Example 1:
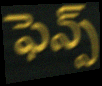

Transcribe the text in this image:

ఫెన్స్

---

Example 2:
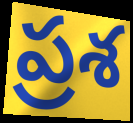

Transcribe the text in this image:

ప్రశ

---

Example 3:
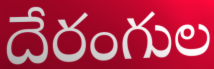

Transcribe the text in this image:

దేరంగుల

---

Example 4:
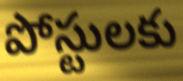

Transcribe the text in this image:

పోస్టులకు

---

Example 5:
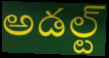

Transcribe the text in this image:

అడల్ట్